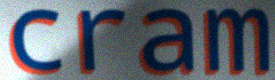
cram